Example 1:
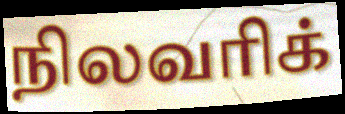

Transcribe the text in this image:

நிலவரிக்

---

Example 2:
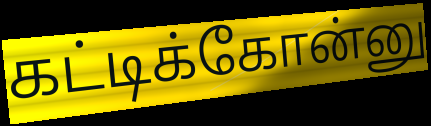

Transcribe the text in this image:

கட்டிக்கோன்னு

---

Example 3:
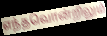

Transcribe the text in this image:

எந்தவொன்றிலும்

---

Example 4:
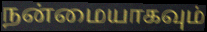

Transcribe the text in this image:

நன்மையாகவும்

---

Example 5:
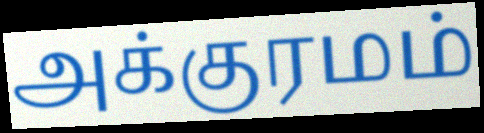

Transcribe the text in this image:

அக்குரமம்